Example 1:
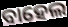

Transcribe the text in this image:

ବାହେଲ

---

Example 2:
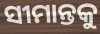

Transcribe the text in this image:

ସୀମାନ୍ତକୁ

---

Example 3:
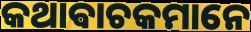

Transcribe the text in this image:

କଥାଵାଚକମାନେ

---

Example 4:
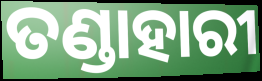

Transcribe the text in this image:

ତଣ୍ଡାହାରୀ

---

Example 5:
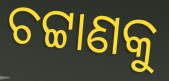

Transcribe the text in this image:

ଚଟ୍ଟାଣକୁ